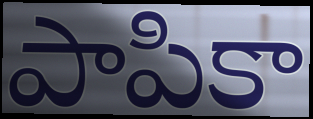
పాపికా